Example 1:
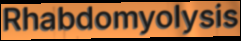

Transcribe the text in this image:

Rhabdomyolysis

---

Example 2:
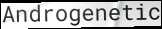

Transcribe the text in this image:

Androgenetic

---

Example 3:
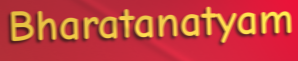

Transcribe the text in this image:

Bharatanatyam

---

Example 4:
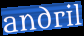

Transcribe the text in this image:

andril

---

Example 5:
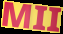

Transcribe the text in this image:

MII